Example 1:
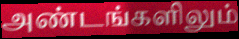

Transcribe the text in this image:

அண்டங்களிலும்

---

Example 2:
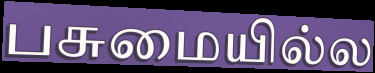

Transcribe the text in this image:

பசுமையில்ல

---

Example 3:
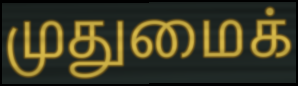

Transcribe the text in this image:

முதுமைக்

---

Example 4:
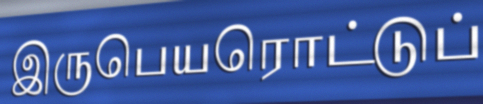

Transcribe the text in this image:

இருபெயரொட்டுப்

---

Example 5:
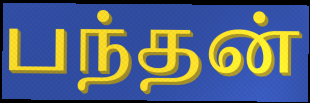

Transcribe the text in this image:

பந்தன்